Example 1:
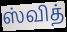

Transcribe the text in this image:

ஸ்வித்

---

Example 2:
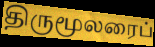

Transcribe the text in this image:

திருமூலரைப்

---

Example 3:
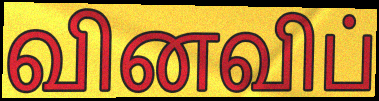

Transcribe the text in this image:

வினவிப்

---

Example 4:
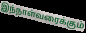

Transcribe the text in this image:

இந்நாள்வரைக்கும்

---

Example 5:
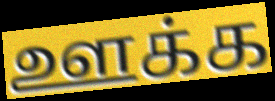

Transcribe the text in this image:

ஊக்க